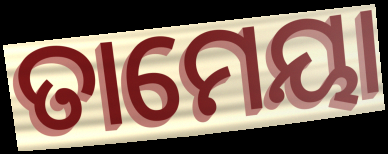
ତାମେୟା